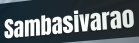
Sambasivarao